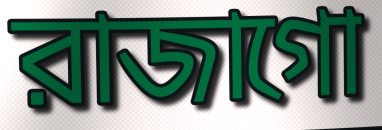
রাজাগো